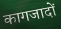
कागजादों